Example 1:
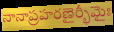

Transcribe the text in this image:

నానాప్రహరణైర్భీమైః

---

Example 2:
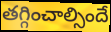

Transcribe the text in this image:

తగ్గించాల్సిందే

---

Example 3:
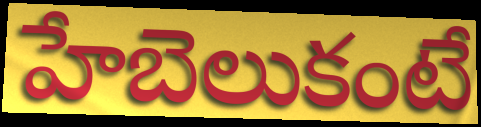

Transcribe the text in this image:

హేబెలుకంటే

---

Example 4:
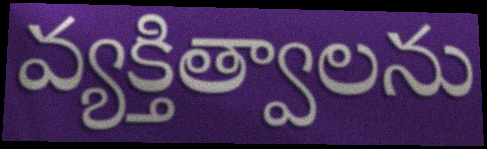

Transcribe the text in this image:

వ్యక్తిత్వాలను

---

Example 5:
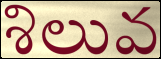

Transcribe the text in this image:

శిలువ